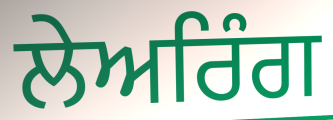
ਲੇਅਰਿੰਗ